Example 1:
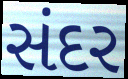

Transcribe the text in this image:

સંદર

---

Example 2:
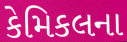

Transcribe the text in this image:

કેમિકલના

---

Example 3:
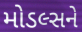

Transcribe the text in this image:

મોડલ્સને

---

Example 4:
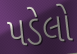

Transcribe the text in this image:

પડેલો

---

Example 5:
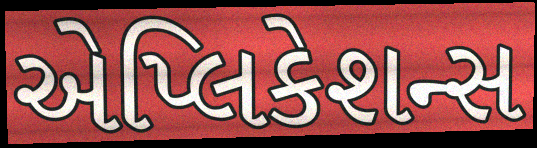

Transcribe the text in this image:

એપ્લિકેશન્સ